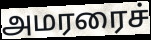
அமரரைச்